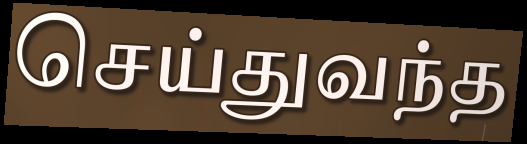
செய்துவந்த